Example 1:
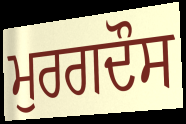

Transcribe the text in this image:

ਮੁਰਗਦੌਸ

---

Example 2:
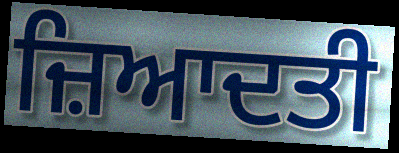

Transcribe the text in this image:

ਜ਼ਿਆਦਤੀ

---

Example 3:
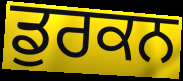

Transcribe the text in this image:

ਡੁਰਕਨ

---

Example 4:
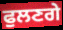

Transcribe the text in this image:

ਫੁਲਣਗੇ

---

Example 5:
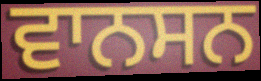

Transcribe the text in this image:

ਵਾਨਸਨ